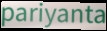
pariyanta